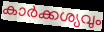
കാർക്കശ്യവും